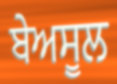
ਬੇਅਸੂਲ